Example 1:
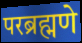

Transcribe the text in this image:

परब्रह्मणे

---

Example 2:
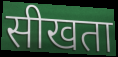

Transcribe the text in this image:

सीखता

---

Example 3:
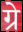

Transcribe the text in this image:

ग्रे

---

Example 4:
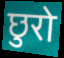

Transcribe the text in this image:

छुरो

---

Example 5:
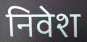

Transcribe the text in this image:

निवेश